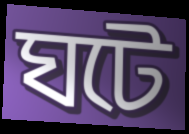
ঘটে